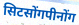
सिटसोंगपीनोंग